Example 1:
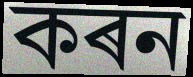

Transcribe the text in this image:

কৰন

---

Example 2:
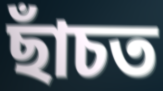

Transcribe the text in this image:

ছাঁচত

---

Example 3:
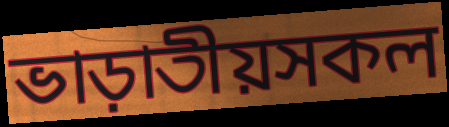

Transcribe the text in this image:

ভাড়াতীয়সকল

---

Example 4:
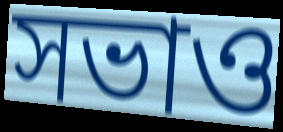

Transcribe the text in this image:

সভাও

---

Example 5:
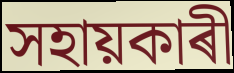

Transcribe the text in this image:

সহায়কাৰী